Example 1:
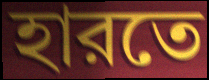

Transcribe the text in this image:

হারতে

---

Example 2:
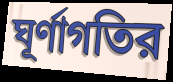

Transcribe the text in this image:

ঘূর্ণাগতির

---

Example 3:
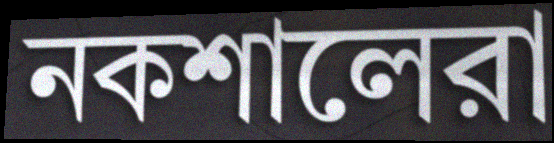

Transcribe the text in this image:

নকশালেরা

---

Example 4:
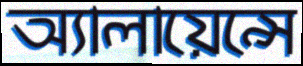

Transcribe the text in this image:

অ্যালায়েন্সে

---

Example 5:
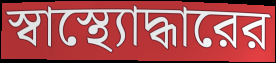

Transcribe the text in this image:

স্বাস্থ্যোদ্ধারের